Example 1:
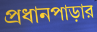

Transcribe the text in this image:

প্রধানপাড়ার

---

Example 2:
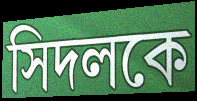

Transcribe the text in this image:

সিদলকে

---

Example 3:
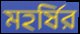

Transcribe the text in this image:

মহর্ষির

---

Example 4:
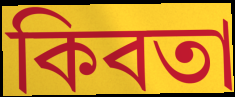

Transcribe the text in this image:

কিবতা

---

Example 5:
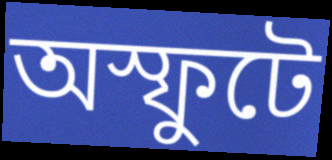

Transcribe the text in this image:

অস্ফুটে